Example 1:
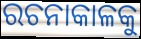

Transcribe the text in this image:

ରଚନାକାଳକୁ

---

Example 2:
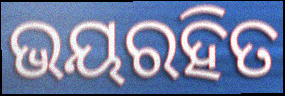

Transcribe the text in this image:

ଭୟରହିତ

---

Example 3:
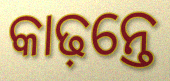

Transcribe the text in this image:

କାଢ଼ନ୍ତେ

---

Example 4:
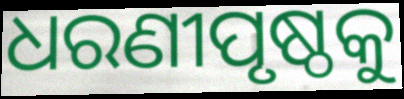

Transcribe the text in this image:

ଧରଣୀପୃଷ୍ଠକୁ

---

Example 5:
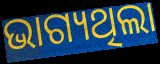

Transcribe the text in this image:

ଭାଗ୍ୟଥିଲା